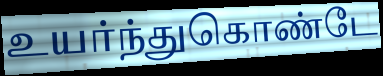
உயர்ந்துகொண்டே